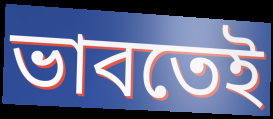
ভাবতেই